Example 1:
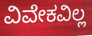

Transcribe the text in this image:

ವಿವೇಕವಿಲ್ಲ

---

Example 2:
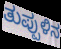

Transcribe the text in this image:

ತುಪ್ಪುಳಿನ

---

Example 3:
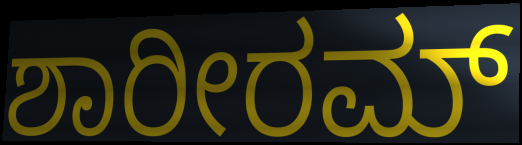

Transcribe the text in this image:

ಶಾರೀರಮ್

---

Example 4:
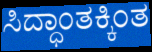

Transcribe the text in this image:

ಸಿದ್ಧಾಂತಕ್ಕಿಂತ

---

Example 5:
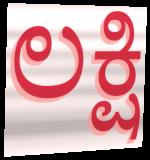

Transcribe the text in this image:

ಲಕ್ಷಿ